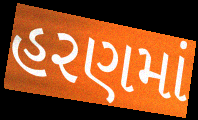
હરણમાં